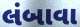
લંબાવા